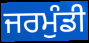
ਜਰਮੁੰਡੀ